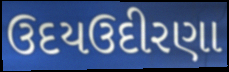
ઉદયઉદીરણા